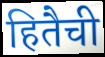
हितैची